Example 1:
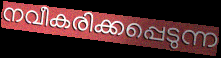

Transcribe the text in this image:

നവീകരിക്കപ്പെടുന്ന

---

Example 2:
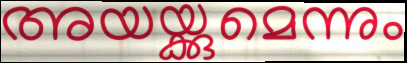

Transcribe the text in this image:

അയയ്ക്കുമെന്നും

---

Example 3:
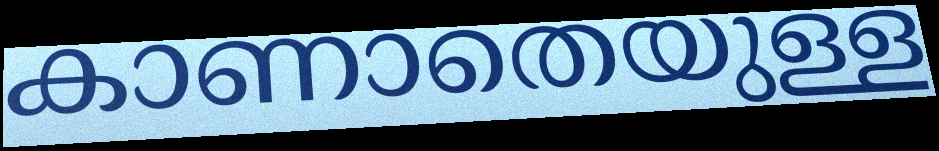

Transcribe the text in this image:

കാണാതെയുള്ള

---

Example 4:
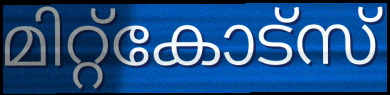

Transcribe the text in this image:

മിറ്റ്കോട്സ്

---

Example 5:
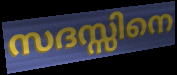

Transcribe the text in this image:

സദസ്സിനെ